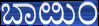
ಬಾೞುಂ